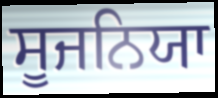
ਸੂਜਨਿਯਾ